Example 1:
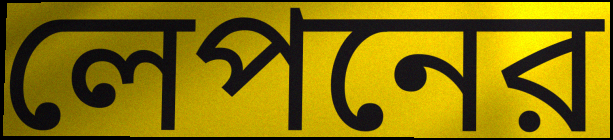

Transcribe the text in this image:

লেপনের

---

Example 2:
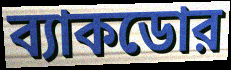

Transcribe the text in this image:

ব্যাকডোর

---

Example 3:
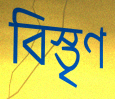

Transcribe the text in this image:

বিস্তৃণ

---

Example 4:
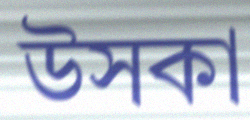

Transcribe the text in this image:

উসকা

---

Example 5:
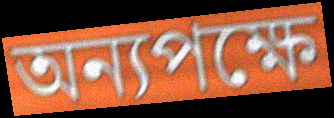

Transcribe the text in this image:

অন্যপক্ষে